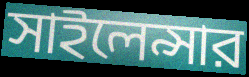
সাইলেন্সার